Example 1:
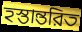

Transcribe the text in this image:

হস্তান্তরিত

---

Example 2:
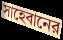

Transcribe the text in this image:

সাহেবানের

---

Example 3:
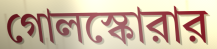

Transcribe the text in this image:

গোলস্কোরার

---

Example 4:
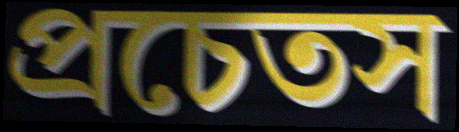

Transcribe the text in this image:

প্রচেতস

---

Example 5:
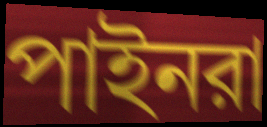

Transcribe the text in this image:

পাইনরা